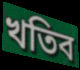
খতিব